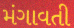
મંગાવતી